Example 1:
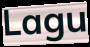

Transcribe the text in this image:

Lagu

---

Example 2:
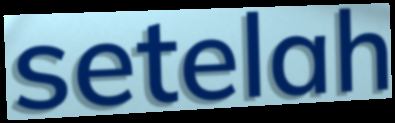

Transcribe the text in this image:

setelah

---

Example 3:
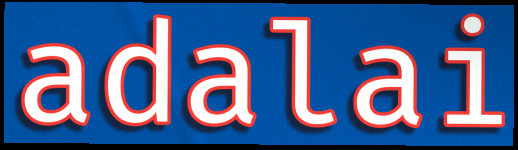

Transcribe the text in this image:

adalai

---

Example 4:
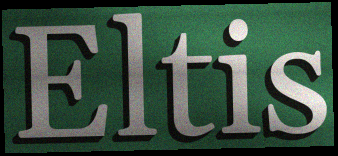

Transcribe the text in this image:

Eltis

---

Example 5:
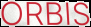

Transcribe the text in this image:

ORBIS